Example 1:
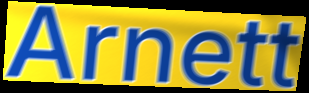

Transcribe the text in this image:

Arnett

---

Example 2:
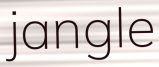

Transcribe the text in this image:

jangle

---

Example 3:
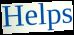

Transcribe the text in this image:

Helps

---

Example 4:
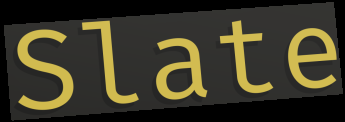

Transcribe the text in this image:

Slate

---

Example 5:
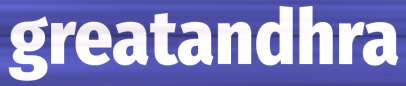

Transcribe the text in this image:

greatandhra